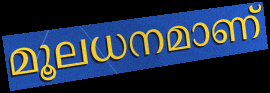
മൂലധനമാണ്